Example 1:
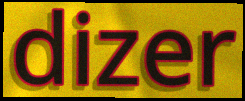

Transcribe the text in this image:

dizer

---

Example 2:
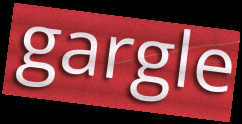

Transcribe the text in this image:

gargle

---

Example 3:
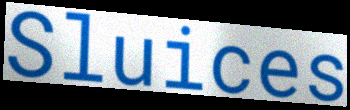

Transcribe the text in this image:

Sluices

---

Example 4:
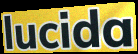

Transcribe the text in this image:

lucida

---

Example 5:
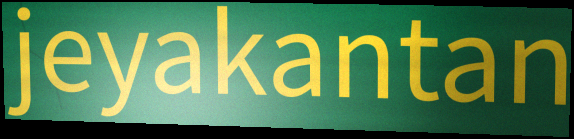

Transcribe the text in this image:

jeyakantan